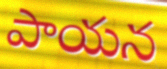
పాయన